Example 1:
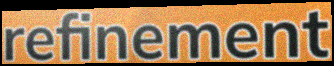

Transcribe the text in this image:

refinement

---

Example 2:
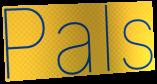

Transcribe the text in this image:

Pals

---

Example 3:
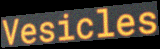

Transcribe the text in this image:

Vesicles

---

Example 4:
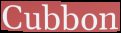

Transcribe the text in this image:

Cubbon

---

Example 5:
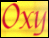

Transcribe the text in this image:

Oxy